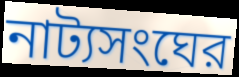
নাট্যসংঘের